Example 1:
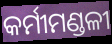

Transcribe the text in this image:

କର୍ମୀମଣ୍ଡଳୀ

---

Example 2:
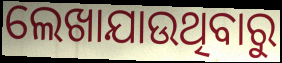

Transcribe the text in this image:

ଲେଖାଯାଉଥିବାରୁ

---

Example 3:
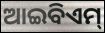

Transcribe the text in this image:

ଆଇବିଏମ୍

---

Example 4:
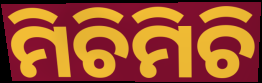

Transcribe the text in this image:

ମିଚିମିଚି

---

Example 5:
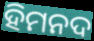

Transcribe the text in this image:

ହିମନଦ